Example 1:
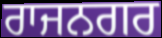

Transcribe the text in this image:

ਰਾਜਨਗਰ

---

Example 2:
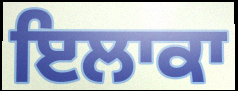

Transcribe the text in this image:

ਇਲਾਕਾ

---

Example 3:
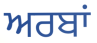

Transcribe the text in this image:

ਅਰਬਾਂ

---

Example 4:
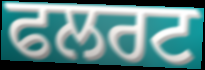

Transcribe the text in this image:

ਫਲਰਟ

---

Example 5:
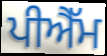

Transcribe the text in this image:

ਪੀਐੱਮ